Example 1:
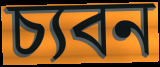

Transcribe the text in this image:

চ্যবন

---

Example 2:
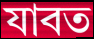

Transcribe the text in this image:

যাবত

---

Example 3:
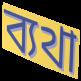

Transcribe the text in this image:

ব্যথা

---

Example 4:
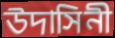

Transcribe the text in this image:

উদাসিনী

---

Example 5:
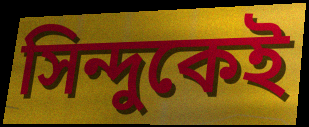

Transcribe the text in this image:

সিন্দুকেই